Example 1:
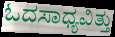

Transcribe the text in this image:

ಓದಸಾಧ್ಯವಿತ್ತು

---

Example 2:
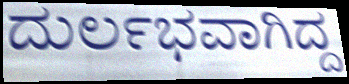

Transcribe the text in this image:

ದುರ್ಲಭವಾಗಿದ್ದ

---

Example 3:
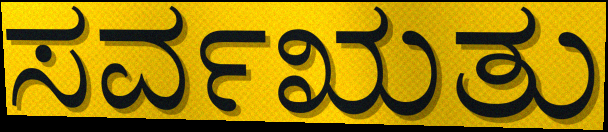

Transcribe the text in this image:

ಸರ್ವಋತು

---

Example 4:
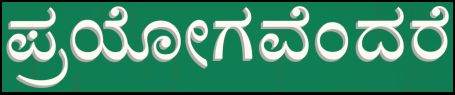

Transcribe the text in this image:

ಪ್ರಯೋಗವೆಂದರೆ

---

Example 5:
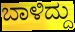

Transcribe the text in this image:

ಬಾಳಿದ್ದು